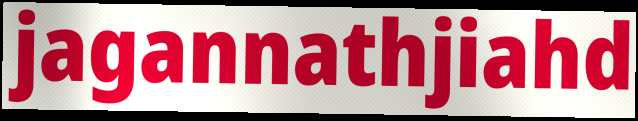
jagannathjiahd